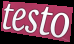
testo